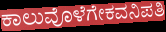
ಕಾಲುವೊಳೆಗೇಕವನಿಪತಿ